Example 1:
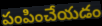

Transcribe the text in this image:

పంపించేయడం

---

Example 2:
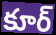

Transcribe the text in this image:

కూర్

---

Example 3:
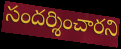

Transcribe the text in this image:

సందర్శించారని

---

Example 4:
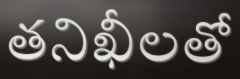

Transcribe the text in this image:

తనిఖీలతో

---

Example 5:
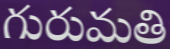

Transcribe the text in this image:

గురుమతి